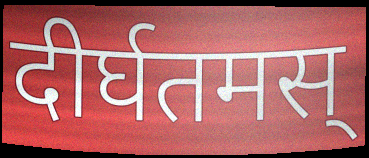
दीर्घतमस्